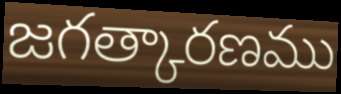
జగత్కారణము